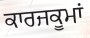
ਕਾਰਜਕੂਮਾਂ